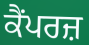
ਕੈਂਪਰਜ਼